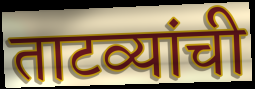
ताटव्यांची